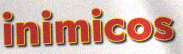
inimicos